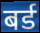
बर्ड